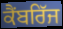
ਕੈਂਬਰਿੱਜ